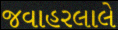
જવાહરલાલે